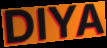
DIYA